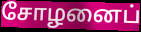
சோழனைப்